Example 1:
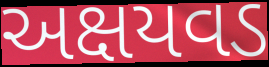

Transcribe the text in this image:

અક્ષયવડ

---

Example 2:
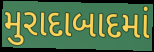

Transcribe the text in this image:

મુરાદાબાદમાં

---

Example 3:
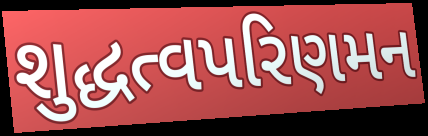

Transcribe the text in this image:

શુદ્ધત્વપરિણમન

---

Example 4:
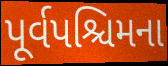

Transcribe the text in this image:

પૂર્વપશ્ચિમના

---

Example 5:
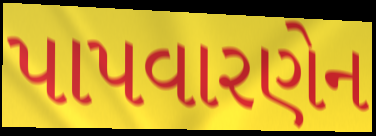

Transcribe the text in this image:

પાપવારણેન